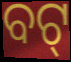
ବଟ୍